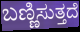
ಬಣ್ಣಿಸುತ್ತದೆ